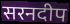
सरनदीप